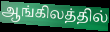
ஆங்கிலத்தில்